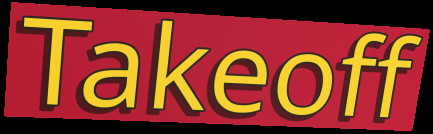
Takeoff